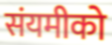
संयमीको